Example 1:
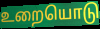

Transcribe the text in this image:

உறையொடு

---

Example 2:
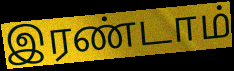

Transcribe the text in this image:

இரண்டாம்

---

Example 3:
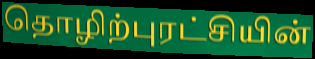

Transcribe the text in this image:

தொழிற்புரட்சியின்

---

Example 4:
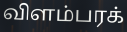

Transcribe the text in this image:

விளம்பரக்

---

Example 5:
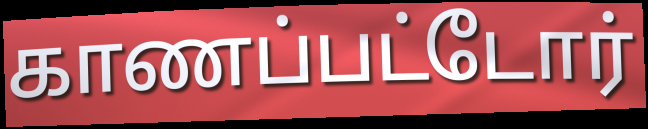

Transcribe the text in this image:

காணப்பட்டோர்